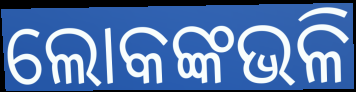
ଲୋକଙ୍କଭଳି